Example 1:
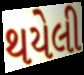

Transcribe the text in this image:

થયેલી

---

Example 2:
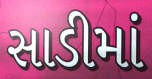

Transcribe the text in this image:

સાડીમાં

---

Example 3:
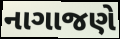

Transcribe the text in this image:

નાગાજણે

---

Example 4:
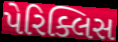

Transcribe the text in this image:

પેરિક્લિસ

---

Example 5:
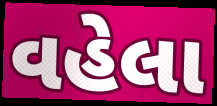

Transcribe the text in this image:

વહેલા